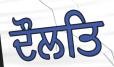
ਦੌਲਤਿ